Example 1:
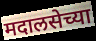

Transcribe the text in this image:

मदालसेच्या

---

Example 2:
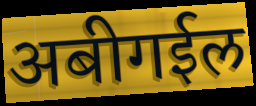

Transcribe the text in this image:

अबीगईल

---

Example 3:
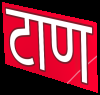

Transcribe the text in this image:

टाण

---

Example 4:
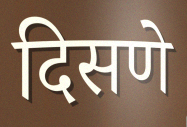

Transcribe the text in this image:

दिसणे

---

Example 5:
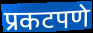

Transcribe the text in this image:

प्रकटपणे